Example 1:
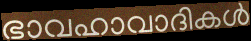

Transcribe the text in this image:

ഭാവഹാവാദികൾ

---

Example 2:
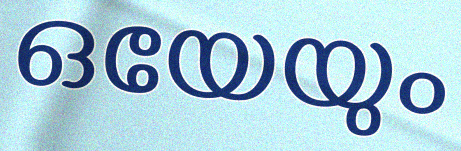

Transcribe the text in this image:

ഒയേയും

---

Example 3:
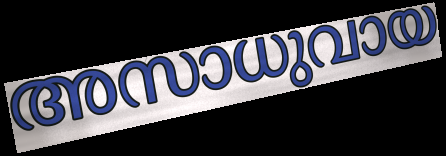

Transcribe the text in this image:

അസാധുവായ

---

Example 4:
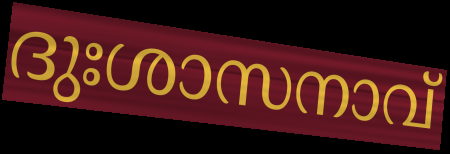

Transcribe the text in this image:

ദുഃശാസനാവ്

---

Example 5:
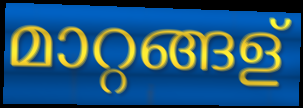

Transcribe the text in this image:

മാറ്റങ്ങള്